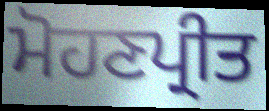
ਮੋਹਣਪ੍ਰੀਤ